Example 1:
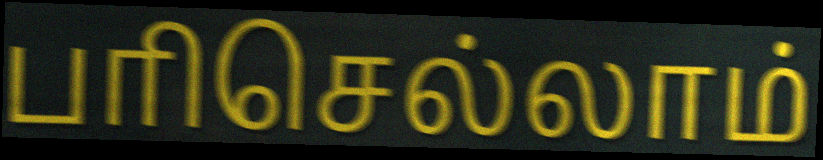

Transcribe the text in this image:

பரிசெல்லாம்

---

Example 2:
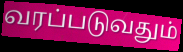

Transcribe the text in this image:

வரப்படுவதும்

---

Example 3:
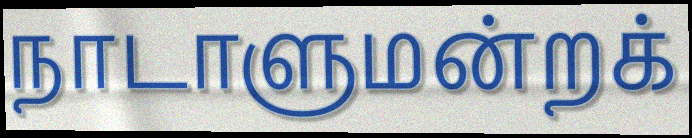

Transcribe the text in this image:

நாடாளுமன்றக்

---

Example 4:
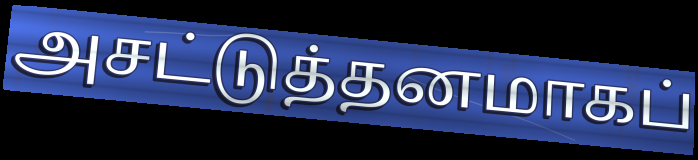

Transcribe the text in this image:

அசட்டுத்தனமாகப்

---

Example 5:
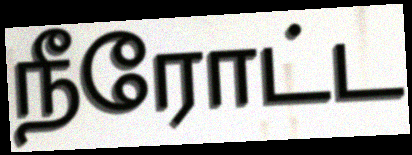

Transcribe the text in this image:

நீரோட்ட